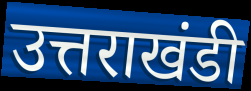
उत्तराखंडी